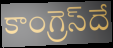
కాంగ్రెస్‌దే